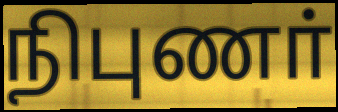
நிபுணர்